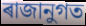
ৰাজানুগত